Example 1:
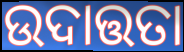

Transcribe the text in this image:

ଉଦାତ୍ତତା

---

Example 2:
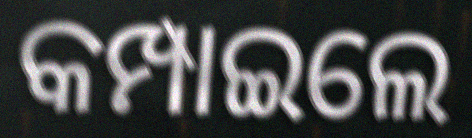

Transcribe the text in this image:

କମ୍ପାଇଲେ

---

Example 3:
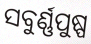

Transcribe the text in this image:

ସବୁର୍ଣ୍ଣପୁଷ୍ପ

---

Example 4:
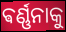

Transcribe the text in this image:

ଵର୍ଣ୍ଣନାକୁ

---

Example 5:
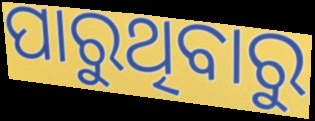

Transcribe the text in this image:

ପାରୁଥିବାରୁ